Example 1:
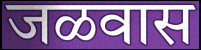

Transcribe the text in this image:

जळवास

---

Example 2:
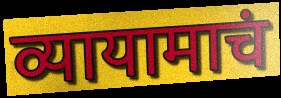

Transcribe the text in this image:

व्यायामाचं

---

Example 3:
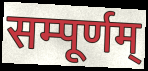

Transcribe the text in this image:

सम्पूर्णम्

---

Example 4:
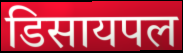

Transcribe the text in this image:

डिसायपल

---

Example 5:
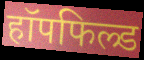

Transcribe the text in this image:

हॉपफिल्ड